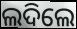
ଲଦିଲେ